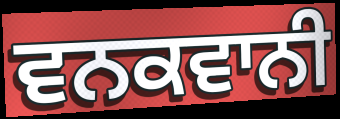
ਵਨਕਵਾਨੀ